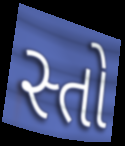
સ્તો